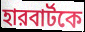
হারবার্টকে